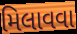
મિલાવવા